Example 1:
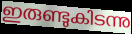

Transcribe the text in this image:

ഇരുണ്ടുകിടന്നു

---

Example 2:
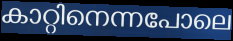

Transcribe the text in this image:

കാറ്റിനെന്നപോലെ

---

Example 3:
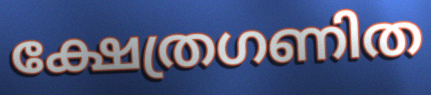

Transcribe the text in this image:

ക്ഷേത്രഗണിത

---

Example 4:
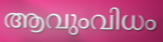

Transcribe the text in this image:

ആവുംവിധം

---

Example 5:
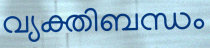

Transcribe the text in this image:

വ്യക്തിബന്ധം